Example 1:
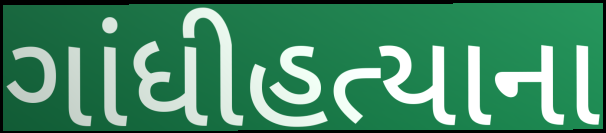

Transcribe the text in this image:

ગાંધીહત્યાના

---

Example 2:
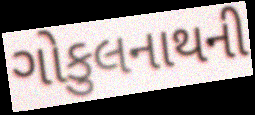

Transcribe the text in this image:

ગોકુલનાથની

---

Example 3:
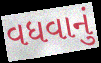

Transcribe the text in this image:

વધવાનું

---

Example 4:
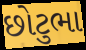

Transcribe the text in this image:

છોટુભા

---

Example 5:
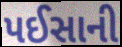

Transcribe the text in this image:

પઈસાની